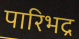
पारिभद्र